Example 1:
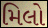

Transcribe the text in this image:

મિલો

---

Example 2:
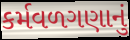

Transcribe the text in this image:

કર્મવળગણાનું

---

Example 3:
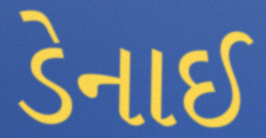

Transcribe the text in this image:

ડેનાઈ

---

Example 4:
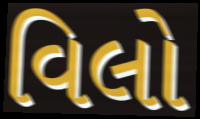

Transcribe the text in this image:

વિલો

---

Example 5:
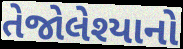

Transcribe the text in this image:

તેજોલેશ્યાનો